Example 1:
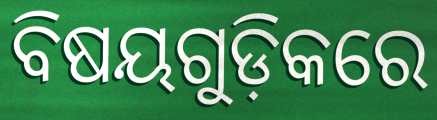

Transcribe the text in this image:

ବିଷୟଗୁଡ଼ିକରେ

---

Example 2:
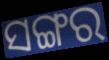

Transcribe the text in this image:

ସଙ୍ଗର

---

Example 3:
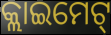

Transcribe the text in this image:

କ୍ଲାଇମେଟ୍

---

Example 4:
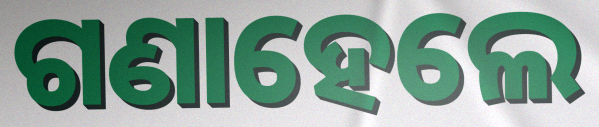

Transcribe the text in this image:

ଗଣାହେଲେ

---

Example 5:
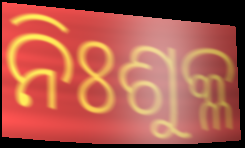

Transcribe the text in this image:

ନିଃଶୁକ୍ଳ